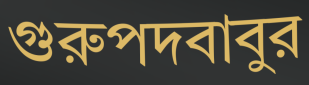
গুরুপদবাবুর